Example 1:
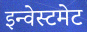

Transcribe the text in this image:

इन्वेस्टमेट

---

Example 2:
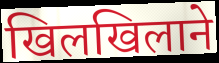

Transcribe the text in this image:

खिलखिलाने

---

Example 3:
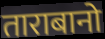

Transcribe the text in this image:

ताराबानो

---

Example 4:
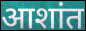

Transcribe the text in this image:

आशांत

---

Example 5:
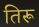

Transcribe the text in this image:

तिरू